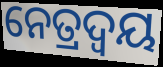
ନେତ୍ରଦ୍ୱୟ